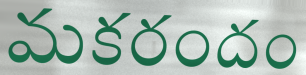
మకరందం